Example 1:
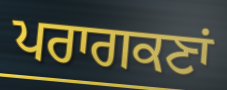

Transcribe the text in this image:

ਪਰਾਗਕਣਾਂ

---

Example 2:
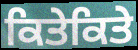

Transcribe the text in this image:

ਕਿਤੇਕਿਤੇ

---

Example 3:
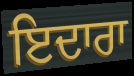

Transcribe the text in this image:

ਇਦਾਰਾ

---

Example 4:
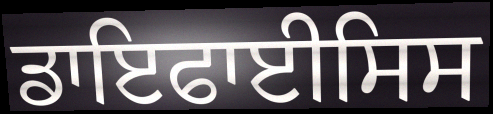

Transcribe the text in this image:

ਡਾਇਫਾਈਸਿਸ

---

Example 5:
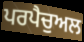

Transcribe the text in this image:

ਪਰਪੈਚੁਅਲ